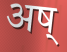
अष्